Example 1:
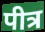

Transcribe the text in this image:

पीत्र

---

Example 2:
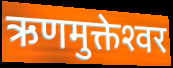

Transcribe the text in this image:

ऋणमुक्तेश्वर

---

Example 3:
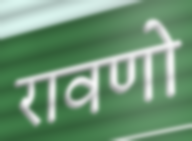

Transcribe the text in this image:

रावणो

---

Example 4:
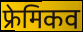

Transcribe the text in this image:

फ्रेमिकव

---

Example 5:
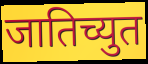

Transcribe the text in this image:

जातिच्युत